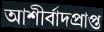
আশীর্বাদপ্রাপ্ত